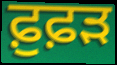
ਫ਼ੁਫ਼ੜ